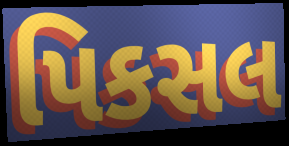
પિકસલ